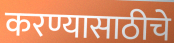
करण्यासाठीचे